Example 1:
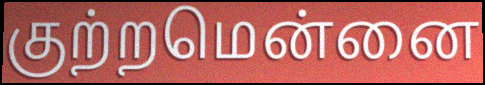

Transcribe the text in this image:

குற்றமென்னை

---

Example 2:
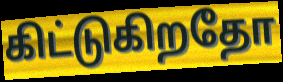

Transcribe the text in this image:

கிட்டுகிறதோ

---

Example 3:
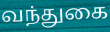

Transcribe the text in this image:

வந்துகை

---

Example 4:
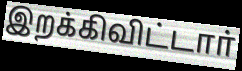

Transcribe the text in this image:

இறக்கிவிட்டார்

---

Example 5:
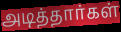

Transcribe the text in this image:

அடித்தார்கள்